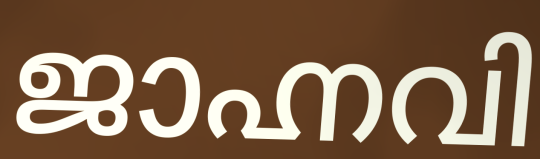
ജാഹ്നവി